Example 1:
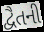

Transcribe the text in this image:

દ્વૈતની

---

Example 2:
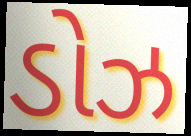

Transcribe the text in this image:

ડોઝ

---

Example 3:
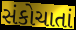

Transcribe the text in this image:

સંકોચાતાં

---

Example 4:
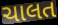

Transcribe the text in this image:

ચાલત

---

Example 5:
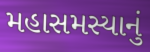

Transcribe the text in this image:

મહાસમસ્યાનું